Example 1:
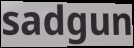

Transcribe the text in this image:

sadgun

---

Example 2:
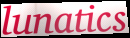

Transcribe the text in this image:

lunatics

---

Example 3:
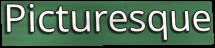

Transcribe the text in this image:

Picturesque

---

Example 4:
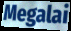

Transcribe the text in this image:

Megalai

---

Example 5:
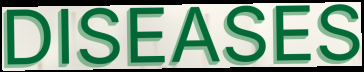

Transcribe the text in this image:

DISEASES